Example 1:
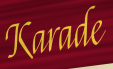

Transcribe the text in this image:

Karade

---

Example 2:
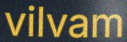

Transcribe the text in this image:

vilvam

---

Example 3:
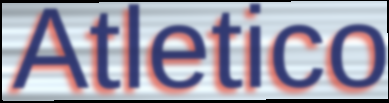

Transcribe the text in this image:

Atletico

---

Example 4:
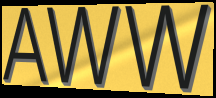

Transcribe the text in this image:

AWW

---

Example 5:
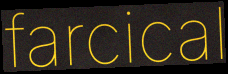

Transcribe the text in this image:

farcical